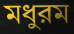
মধুরম